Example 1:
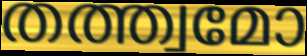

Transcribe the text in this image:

തത്ത്വമോ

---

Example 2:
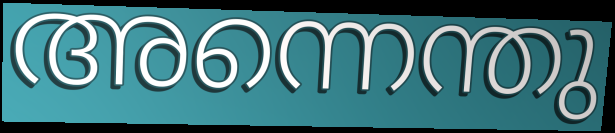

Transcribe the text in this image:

അന്നെന്തു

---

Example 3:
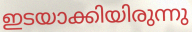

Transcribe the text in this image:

ഇടയാക്കിയിരുന്നു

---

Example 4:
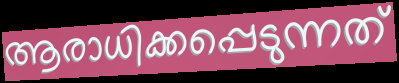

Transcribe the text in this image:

ആരാധിക്കപ്പെടുന്നത്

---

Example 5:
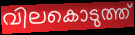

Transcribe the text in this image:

വിലകൊടുത്ത്